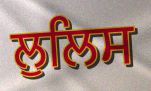
ਲੁਲਿਸ